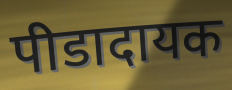
पीडादायक